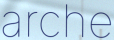
arche